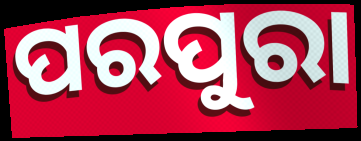
ପରପୁରା